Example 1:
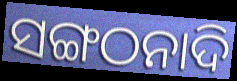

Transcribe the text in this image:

ସଙ୍ଗଠନାଦି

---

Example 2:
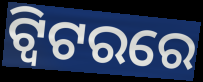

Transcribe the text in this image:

ଟ୍ବିଟରରେ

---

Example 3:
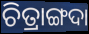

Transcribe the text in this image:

ଚିତ୍ରାଙ୍ଗଦା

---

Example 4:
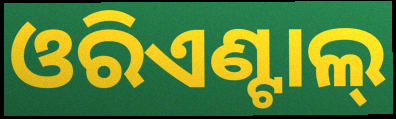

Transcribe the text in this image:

ଓରିଏଣ୍ଟାଲ୍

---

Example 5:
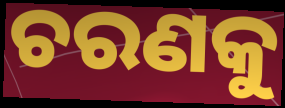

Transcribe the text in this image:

ଚରଣକୁ